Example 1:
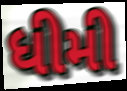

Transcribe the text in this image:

ધીમી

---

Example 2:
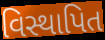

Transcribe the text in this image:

વિસ્થાપિત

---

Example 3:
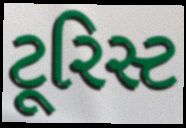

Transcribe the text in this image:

ટૂરિસ્ટ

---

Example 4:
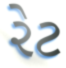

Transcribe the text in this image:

રેટ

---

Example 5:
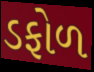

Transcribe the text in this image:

ડફોળ